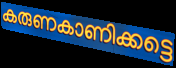
കരുണകാണിക്കട്ടെ